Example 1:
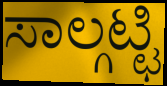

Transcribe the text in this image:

ಸಾಲ್ಗಟ್ಟಿ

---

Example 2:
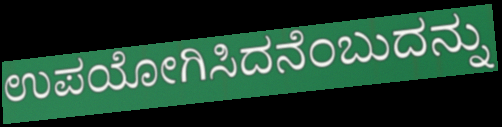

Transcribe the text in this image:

ಉಪಯೋಗಿಸಿದನೆಂಬುದನ್ನು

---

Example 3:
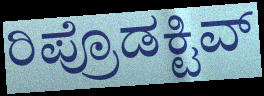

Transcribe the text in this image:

ರಿಪ್ರೊಡಕ್ಟಿವ್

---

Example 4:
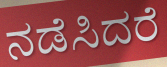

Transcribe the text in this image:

ನಡೆಸಿದರೆ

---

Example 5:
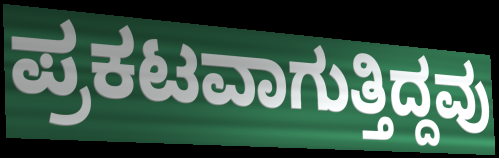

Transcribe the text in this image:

ಪ್ರಕಟವಾಗುತ್ತಿದ್ದವು